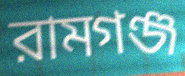
রামগঞ্জ